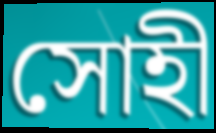
সোহী